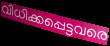
വിധിക്കപ്പെട്ടവരെ